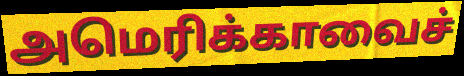
அமெரிக்காவைச்